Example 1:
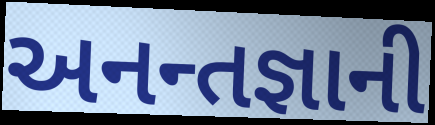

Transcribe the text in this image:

અનન્તજ્ઞાની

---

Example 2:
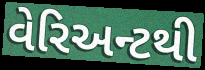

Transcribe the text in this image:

વેરિઅન્ટથી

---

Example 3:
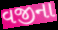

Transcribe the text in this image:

વજીના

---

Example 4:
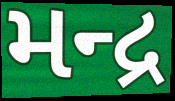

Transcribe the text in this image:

મન્દ્ર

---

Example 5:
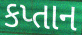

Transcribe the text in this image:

કપ્તાન